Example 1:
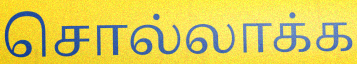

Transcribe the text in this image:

சொல்லாக்க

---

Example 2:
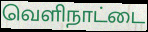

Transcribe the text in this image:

வெளிநாட்டை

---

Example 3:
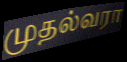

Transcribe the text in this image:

முதல்வரா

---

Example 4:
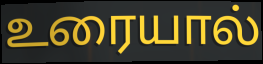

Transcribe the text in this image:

உரையால்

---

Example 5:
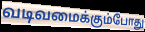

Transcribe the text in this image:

வடிவமைக்கும்போது